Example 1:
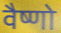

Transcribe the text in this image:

वैष्णो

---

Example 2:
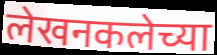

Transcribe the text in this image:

लेखनकलेच्या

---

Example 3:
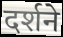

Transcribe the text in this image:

दर्शने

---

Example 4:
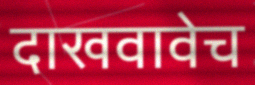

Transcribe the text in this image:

दाखवावेच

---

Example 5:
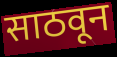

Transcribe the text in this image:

साठवून